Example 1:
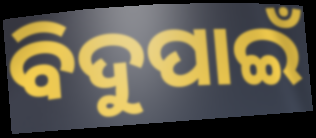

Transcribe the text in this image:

ବିଦୁପାଇଁ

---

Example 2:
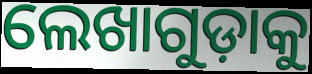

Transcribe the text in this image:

ଲେଖାଗୁଡ଼ାକୁ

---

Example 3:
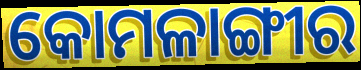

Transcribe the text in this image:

କୋମଳାଙ୍ଗୀର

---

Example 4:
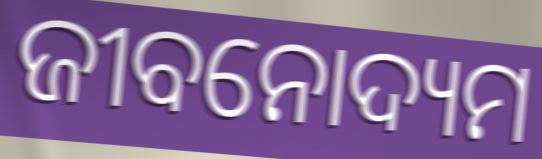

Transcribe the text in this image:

ଜୀବନୋଦ୍ୟମ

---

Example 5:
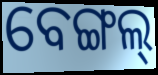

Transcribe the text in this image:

ବେଙ୍ଗଲ୍